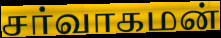
சர்வாகமன்